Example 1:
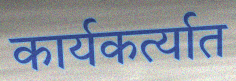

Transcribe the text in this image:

कार्यकर्त्यात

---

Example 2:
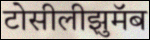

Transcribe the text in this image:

टोसीलीझुमॅब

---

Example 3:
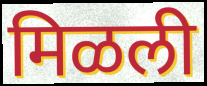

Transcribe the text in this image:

मिळली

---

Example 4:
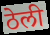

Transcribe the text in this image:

ठेली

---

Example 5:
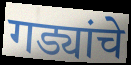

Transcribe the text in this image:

गड्यांचे